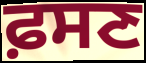
ਫ਼ਸਣ